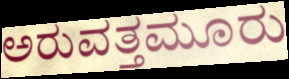
ಅರುವತ್ತಮೂರು